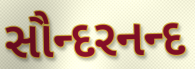
સૌન્દરનન્દ